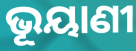
ଭୂୟାଣୀ